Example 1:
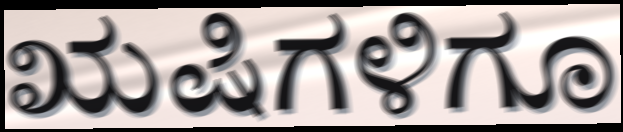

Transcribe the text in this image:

ಋಷಿಗಳಿಗೂ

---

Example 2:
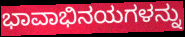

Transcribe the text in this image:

ಭಾವಾಭಿನಯಗಳನ್ನು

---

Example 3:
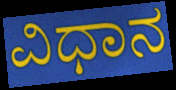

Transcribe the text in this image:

ವಿಧಾನ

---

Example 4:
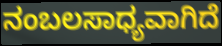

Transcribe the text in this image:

ನಂಬಲಸಾಧ್ಯವಾಗಿದೆ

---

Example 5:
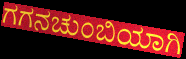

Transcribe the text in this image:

ಗಗನಚುಂಬಿಯಾಗಿ